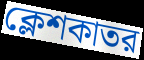
ক্লেশকাতর